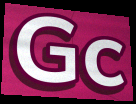
Gc